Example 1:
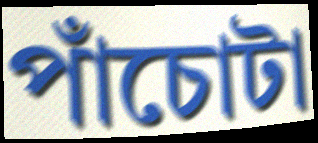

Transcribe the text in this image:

পাঁচোটা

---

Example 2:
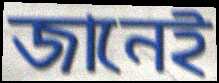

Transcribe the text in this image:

জানেই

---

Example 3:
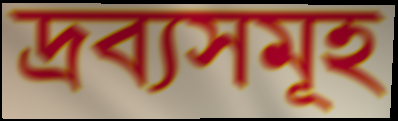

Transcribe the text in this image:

দ্ৰব্যসমূহ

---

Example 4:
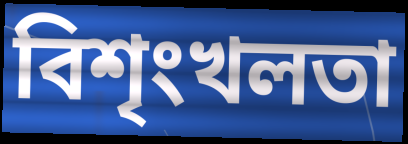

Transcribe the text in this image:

বিশৃংখলতা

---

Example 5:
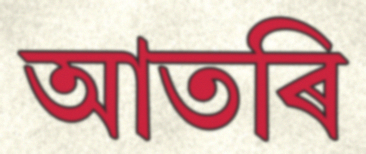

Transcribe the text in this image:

আতৰি